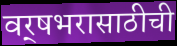
वर्षभरासाठीची